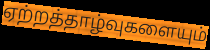
ஏற்றத்தாழ்வுகளையும்